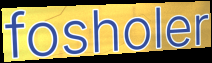
fosholer